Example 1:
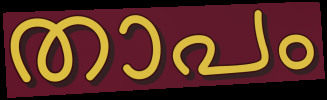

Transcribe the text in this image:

താപം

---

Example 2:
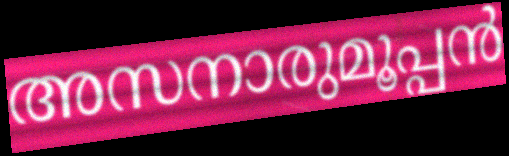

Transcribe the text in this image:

അസനാരുമൂപ്പൻ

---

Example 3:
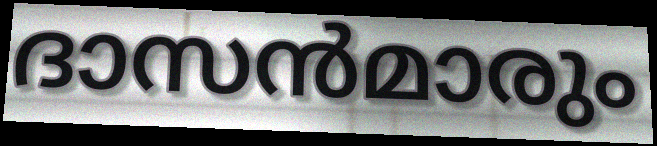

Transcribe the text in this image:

ദാസൻമാരും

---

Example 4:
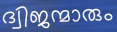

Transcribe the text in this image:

ദ്വിജന്മാരും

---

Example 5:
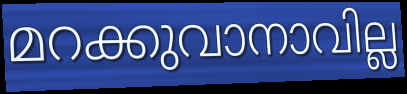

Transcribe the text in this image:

മറക്കുവാനാവില്ല